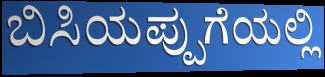
ಬಿಸಿಯಪ್ಪುಗೆಯಲ್ಲಿ